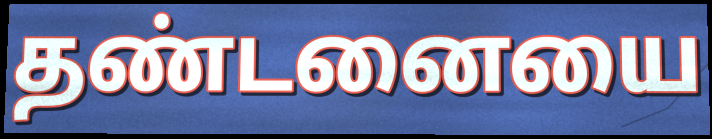
தண்டனையை